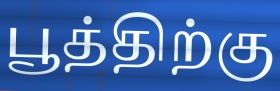
பூத்திற்கு